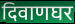
दिवाणघर